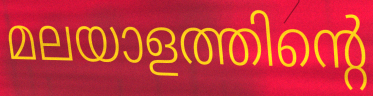
മലയാളത്തിന്റെ